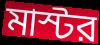
মাস্টর